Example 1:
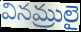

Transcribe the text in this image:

వినమ్రులై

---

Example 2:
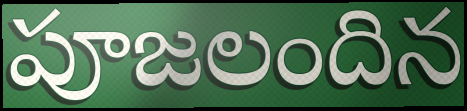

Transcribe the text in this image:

పూజలందిన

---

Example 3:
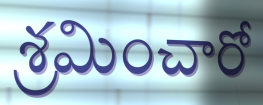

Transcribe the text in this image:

శ్రమించారో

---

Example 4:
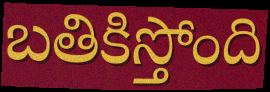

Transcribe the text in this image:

బతికిస్తోంది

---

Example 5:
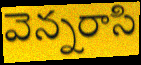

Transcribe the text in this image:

వెన్నరాసి